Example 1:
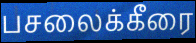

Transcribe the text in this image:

பசலைக்கீரை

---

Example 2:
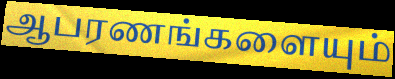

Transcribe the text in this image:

ஆபரணங்களையும்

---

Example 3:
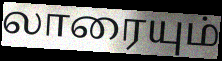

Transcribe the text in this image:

லாரையும்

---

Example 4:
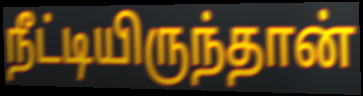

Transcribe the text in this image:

நீட்டியிருந்தான்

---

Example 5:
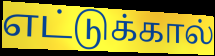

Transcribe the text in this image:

எட்டுக்கால்